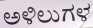
ಅಳಿಲುಗಳ